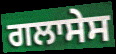
ਗਲਾਸੇਸ